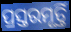
ପ୍ରସ୍ତରମୂର୍ତ୍ତି